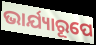
ଭାର୍ଯ୍ୟାରୂପେ